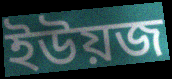
ইউয়জ